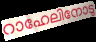
റാഹേലിനോടു